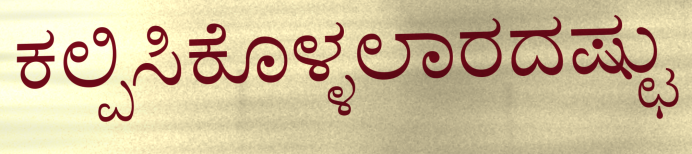
ಕಲ್ಪಿಸಿಕೊಳ್ಳಲಾರದಷ್ಟು